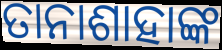
ତାନାଶାହାଙ୍କ